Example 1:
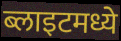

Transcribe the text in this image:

ब्लाइटमध्ये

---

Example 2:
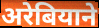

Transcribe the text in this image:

अरेबियाने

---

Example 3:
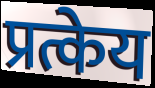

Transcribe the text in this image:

प्रत्केय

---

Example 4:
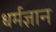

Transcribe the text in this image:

धर्मज्ञान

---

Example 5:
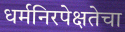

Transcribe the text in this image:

धर्मनिरपेक्षतेचा